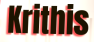
Krithis